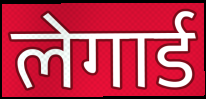
लेगार्ड